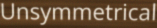
Unsymmetrical